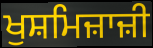
ਖੁਸ਼ਮਿਜ਼ਾਜ਼ੀ